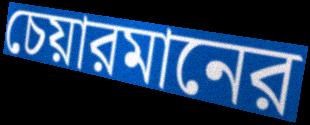
চেয়ারমানের